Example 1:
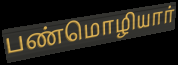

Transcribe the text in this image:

பண்மொழியார்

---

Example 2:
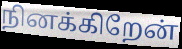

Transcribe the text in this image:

நினக்கிறேன்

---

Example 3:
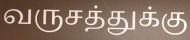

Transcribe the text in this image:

வருசத்துக்கு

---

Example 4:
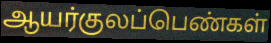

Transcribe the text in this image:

ஆயர்குலப்பெண்கள்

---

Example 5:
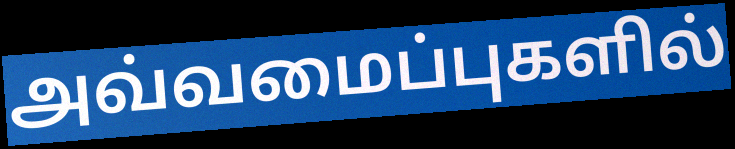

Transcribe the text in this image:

அவ்வமைப்புகளில்